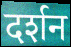
दर्शन